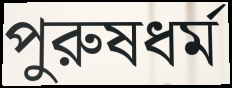
পুরুষধর্ম